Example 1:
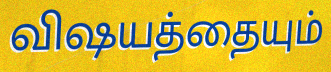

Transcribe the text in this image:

விஷயத்தையும்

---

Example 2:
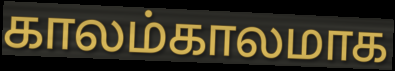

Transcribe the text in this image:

காலம்காலமாக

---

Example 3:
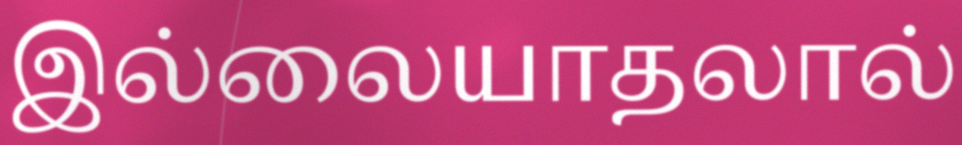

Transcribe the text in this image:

இல்லையாதலால்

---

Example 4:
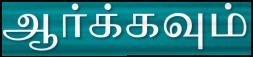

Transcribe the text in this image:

ஆர்க்கவும்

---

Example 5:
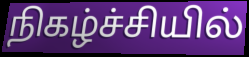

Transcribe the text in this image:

நிகழ்ச்சியில்